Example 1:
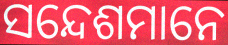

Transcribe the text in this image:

ସନ୍ଦେଶମାନେ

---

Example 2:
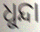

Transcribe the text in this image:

ଧୁନ୍ଦା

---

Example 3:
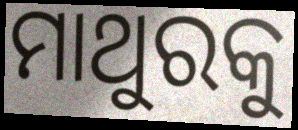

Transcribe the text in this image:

ମାଥୁରକୁ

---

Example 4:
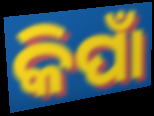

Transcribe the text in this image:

କିପାଁ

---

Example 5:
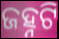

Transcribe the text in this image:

ଜହ୍ନଟି